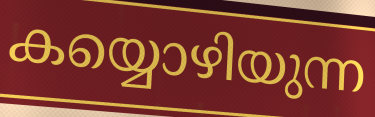
കയ്യൊഴിയുന്ന